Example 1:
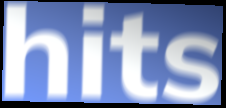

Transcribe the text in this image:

hits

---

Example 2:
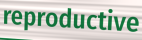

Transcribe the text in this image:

reproductive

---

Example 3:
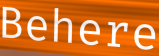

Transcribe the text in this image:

Behere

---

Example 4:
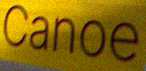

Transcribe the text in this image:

Canoe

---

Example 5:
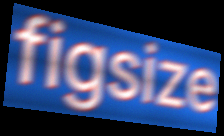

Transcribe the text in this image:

figsize